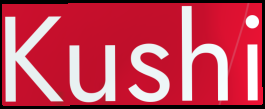
Kushi